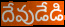
దేవుడేడి